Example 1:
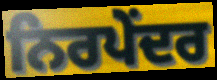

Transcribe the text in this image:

ਨਿਰਪੇਂਦਰ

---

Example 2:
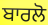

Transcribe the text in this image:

ਬਾਰਲੋ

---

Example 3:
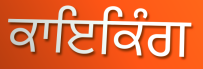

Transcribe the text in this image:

ਕਾਇਕਿੰਗ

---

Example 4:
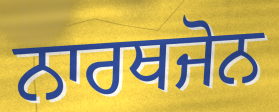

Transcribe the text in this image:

ਨਾਰਥਜੋਨ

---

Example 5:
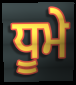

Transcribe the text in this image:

ਧੂਮੇ